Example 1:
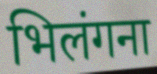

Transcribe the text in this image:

भिलंगना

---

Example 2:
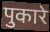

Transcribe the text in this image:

पुकारे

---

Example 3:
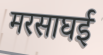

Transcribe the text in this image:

मरसाघई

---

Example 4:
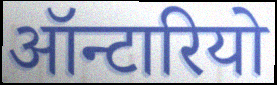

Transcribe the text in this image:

ऑन्टारियो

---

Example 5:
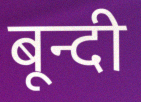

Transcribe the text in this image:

बून्दी